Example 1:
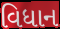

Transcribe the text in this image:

વિધાન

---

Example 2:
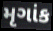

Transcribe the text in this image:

મૃગાંક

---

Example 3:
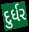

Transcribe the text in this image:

દુર્ધર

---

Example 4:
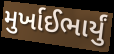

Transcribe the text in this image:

મુર્ખાઈભાર્યું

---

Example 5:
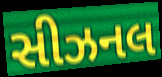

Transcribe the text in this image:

સીઝનલ